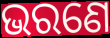
ଭରଣେ